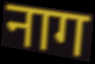
नाग